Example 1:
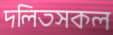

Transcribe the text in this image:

দলিতসকল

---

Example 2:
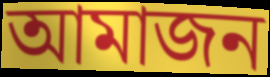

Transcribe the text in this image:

আমাজন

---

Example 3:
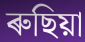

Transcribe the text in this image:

ৰুছিয়া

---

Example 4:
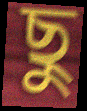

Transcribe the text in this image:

ছু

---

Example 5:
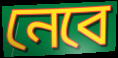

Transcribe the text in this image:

নেবে